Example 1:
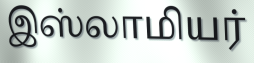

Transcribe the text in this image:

இஸ்லாமியர்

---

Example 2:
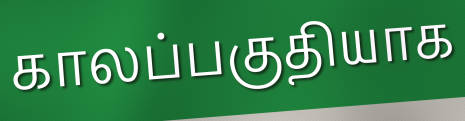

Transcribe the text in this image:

காலப்பகுதியாக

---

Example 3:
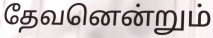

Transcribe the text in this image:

தேவனென்றும்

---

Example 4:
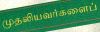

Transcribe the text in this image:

முதலியவர்களைப்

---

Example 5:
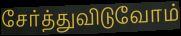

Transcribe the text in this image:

சேர்த்துவிடுவோம்